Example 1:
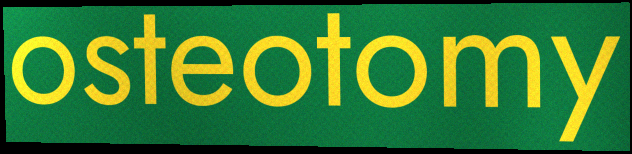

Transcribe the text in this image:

osteotomy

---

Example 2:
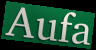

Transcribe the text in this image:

Aufa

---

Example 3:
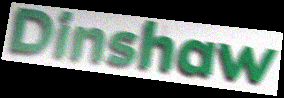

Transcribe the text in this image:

Dinshaw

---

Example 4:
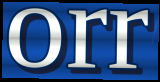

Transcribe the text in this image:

orr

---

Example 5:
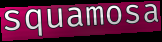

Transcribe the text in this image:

squamosa